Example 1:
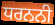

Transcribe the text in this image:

ਧਰਨਨੀ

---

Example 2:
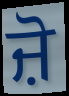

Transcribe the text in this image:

ਜ਼ੋ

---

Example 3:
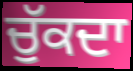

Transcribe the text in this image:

ਚੁੱਕਦਾ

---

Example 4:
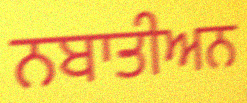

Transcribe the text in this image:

ਨਬਾਤੀਅਨ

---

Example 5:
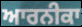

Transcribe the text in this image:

ਆਰਨੀਕਾ